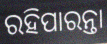
ରହିପାରନ୍ତା